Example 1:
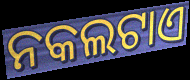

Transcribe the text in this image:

ନକଲଟାଏ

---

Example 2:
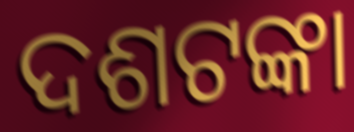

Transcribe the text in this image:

ଦଶଟଙ୍କା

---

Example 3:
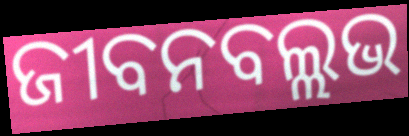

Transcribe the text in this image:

ଜୀବନବଲ୍ଲଭ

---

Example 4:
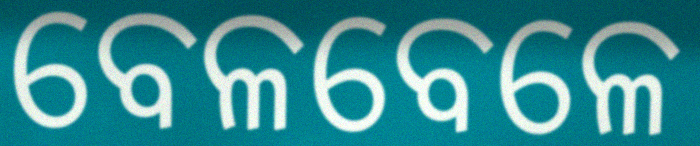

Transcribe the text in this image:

ବେଳବେଳେ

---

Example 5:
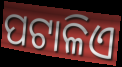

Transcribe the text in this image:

ପଟାଳିଏ